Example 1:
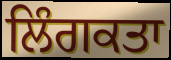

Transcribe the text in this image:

ਲਿੰਗਕਤਾ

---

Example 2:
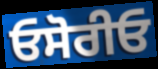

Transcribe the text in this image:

ਓਸੋਰੀਓ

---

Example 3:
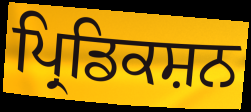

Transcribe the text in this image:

ਪ੍ਰਿਡਿਕਸ਼ਨ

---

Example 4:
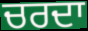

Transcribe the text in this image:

ਚਰਦਾ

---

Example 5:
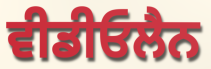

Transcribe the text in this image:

ਵੀਡੀਓਲੈਨ